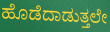
ಹೊಡೆದಾಡುತ್ತಲೇ